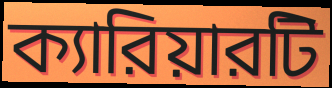
ক্যারিয়ারটি